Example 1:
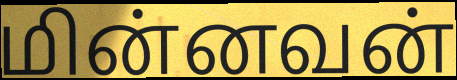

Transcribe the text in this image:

மின்னவன்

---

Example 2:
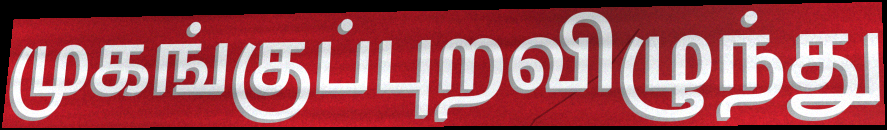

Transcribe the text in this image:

முகங்குப்புறவிழுந்து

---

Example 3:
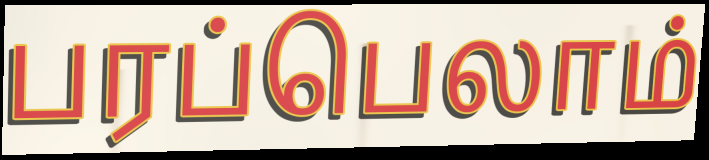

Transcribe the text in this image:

பரப்பெலாம்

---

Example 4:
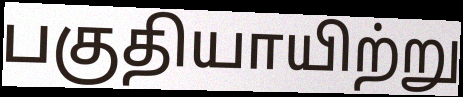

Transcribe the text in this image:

பகுதியாயிற்று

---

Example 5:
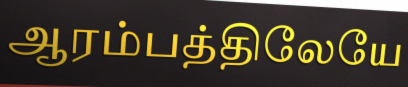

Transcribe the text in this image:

ஆரம்பத்திலேயே